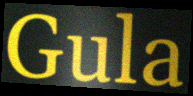
Gula